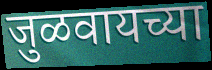
जुळवायच्या